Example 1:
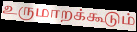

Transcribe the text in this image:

உருமாறக்கூடும்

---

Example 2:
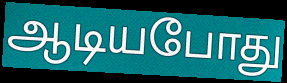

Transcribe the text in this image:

ஆடியபோது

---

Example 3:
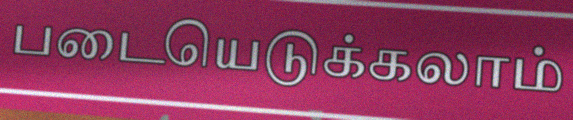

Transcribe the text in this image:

படையெடுக்கலாம்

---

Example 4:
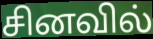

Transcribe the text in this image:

சினவில்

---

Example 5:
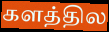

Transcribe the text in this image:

களத்தில